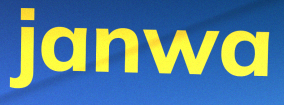
janwa